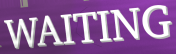
WAITING